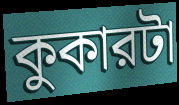
কুকারটা